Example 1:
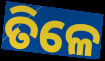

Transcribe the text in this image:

ତିଳେ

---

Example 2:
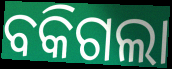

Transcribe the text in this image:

ବକିଗଲା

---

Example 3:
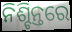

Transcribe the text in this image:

ନିଶ୍ଚିନ୍ତରେ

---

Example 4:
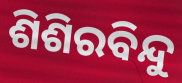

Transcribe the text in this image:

ଶିଶିରବିନ୍ଦୁ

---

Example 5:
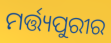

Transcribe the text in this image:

ମର୍ତ୍ତ୍ୟପୁରୀର